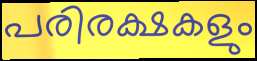
പരിരക്ഷകളും